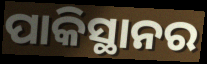
ପାକିସ୍ଥାନର